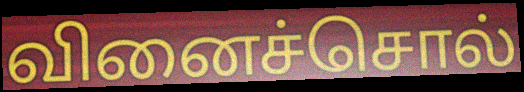
வினைச்சொல்